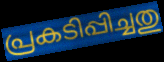
പ്രകടിപ്പിച്ചതു